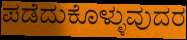
ಪಡೆದುಕೊಳ್ಳುವುದರ